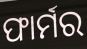
ଫାର୍ମର